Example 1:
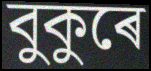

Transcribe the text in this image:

বুকুৰে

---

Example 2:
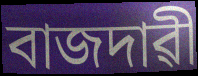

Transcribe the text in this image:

বাজদাৱী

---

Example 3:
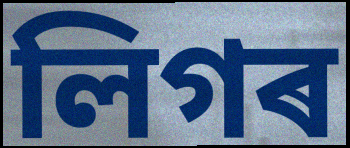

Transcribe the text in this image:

লিগৰ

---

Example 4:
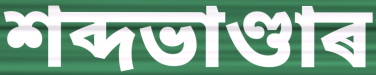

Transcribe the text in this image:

শব্দভাণ্ডাৰ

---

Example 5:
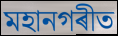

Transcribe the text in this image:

মহানগৰীত